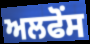
ਅਲਫੋਂਸ